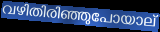
വഴിതിരിഞ്ഞുപോയാല്